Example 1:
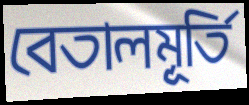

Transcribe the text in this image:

বেতালমূর্তি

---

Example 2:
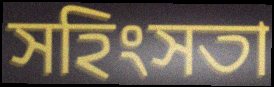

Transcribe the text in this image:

সহিংসতা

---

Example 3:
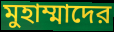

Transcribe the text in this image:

মুহাম্মাদের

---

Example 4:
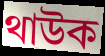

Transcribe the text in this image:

থাউক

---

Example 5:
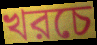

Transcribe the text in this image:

খরচে